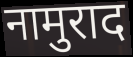
नामुराद